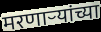
मरणाऱ्यांच्या